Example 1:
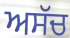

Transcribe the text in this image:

ਅਸੱਚ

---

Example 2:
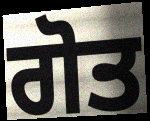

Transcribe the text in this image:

ਗੋਤ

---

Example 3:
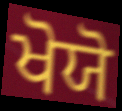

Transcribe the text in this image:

ਖੋਯੋ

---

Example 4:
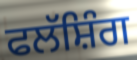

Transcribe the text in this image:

ਫਲੱਸ਼ਿੰਗ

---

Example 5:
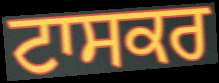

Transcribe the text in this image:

ਟਾਸਕਰ